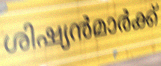
ശിഷ്യൻമാർക്ക്